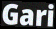
Gari